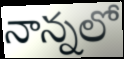
నాన్నలో